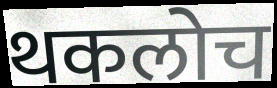
थकलोच